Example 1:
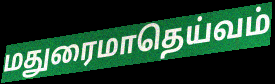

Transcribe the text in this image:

மதுரைமாதெய்வம்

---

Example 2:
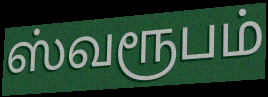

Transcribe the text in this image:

ஸ்வரூபம்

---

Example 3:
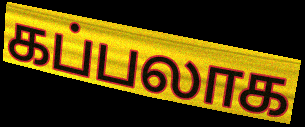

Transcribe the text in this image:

கப்பலாக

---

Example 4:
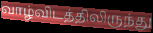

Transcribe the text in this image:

வாழ்விடத்திலிருந்து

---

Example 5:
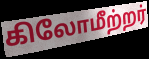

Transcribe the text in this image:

கிலோமீற்றர்